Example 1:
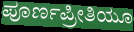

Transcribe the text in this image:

ಪೂರ್ಣಪ್ರೀತಿಯೂ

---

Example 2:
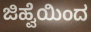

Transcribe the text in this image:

ಜಿಹ್ವೆಯಿಂದ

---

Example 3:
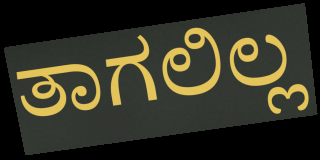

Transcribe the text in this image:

ತಾಗಲಿಲ್ಲ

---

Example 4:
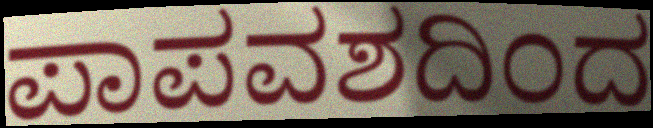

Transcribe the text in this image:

ಪಾಪವಶದಿಂದ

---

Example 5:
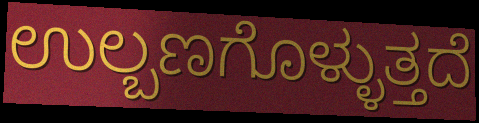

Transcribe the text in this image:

ಉಲ್ಬಣಗೊಳ್ಳುತ್ತದೆ